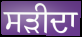
ਸੜੀਦਾ